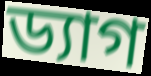
ড্যাগ